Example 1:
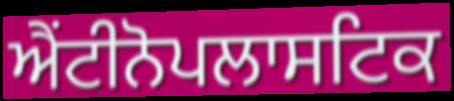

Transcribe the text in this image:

ਐਂਟੀਨੋਪਲਾਸਟਿਕ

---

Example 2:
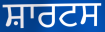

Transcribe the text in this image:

ਸ਼ਾਰਟਸ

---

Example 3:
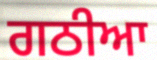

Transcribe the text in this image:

ਗਠੀਆ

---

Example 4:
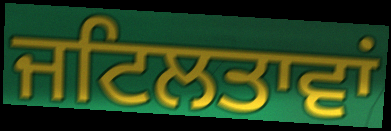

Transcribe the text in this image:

ਜਟਿਲਤਾਵਾਂ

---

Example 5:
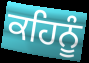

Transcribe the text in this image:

ਕਹਿਨੂੰ